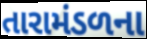
તારામંડળના